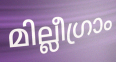
മില്ലീഗ്രാം